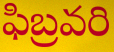
ఫిబ్రవరి